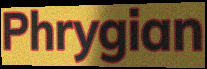
Phrygian